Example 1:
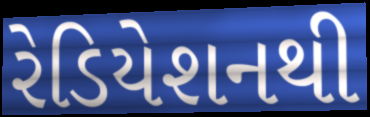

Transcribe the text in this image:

રેડિયેશનથી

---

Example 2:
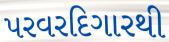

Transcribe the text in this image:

પરવરદિગારથી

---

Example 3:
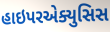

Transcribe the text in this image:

હાઇપરએક્યુસિસ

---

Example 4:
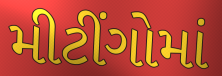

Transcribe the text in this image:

મીટીંગોમાં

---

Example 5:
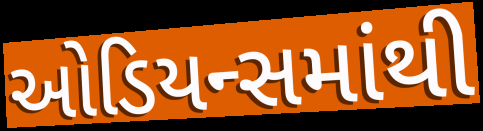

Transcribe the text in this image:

ઓડિયન્સમાંથી